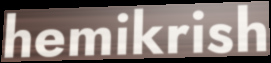
hemikrish